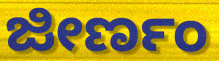
ಜೀರ್ಣಂ